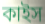
কাইস